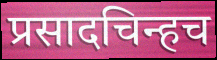
प्रसादचिन्हच